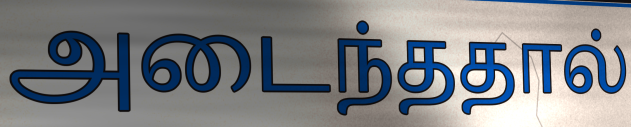
அடைந்ததால்